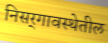
निसर्गावस्थेतील